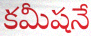
కమీషనే